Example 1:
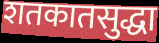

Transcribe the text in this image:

शतकातसुद्धा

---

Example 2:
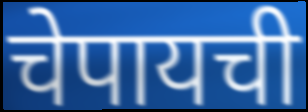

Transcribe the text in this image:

चेपायची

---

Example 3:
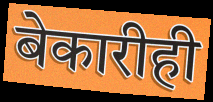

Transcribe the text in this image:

बेकारीही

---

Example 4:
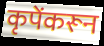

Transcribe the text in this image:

कृपेंकरून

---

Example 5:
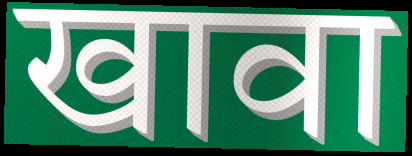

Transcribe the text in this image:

खावा